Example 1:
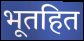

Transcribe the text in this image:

भूतहित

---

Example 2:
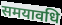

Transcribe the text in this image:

समयावधि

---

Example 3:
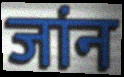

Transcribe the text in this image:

जांन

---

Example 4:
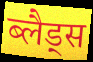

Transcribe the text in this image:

ब्लैड्स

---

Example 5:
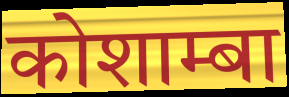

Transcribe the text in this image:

कोशाम्बा